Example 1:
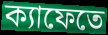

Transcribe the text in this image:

ক্যাফেতে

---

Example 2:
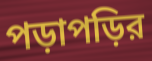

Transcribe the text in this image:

পড়াপড়ির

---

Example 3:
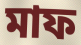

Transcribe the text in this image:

মাফ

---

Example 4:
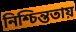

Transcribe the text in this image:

নিশ্চিন্ততায়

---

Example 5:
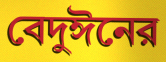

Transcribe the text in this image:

বেদুঈনের